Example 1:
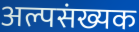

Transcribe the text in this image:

अल्पसंख्यक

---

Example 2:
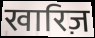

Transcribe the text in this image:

खारिज़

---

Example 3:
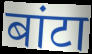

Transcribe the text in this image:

बांटा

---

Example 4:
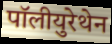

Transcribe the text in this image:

पॉलीयुरेथेन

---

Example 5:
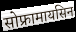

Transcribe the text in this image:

सोफ्रामायसिन